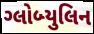
ગ્લોબ્યુલિન